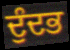
ਦੁੰਦਭ